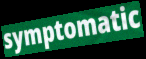
symptomatic